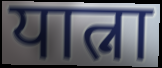
यात्ना